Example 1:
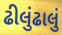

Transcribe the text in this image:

ઢીલુંઢાલું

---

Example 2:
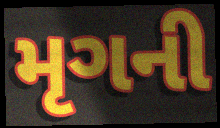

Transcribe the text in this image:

મૃગની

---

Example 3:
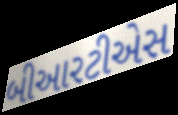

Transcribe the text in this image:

બીઆરટીએસ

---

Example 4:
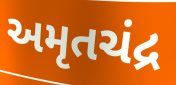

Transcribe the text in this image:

અમૃતચંદ્ર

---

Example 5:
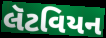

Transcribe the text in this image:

લૅટવિયન